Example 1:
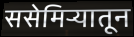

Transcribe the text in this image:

ससेमिऱ्यातून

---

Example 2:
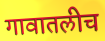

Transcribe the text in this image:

गावातलीच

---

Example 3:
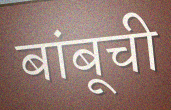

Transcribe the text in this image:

बांबूची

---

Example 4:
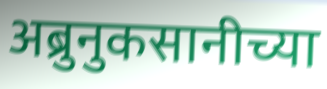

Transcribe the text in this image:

अब्रुनुकसानीच्या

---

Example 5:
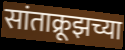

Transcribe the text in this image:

सांताक्रूझच्या